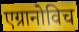
एग्रानोविच